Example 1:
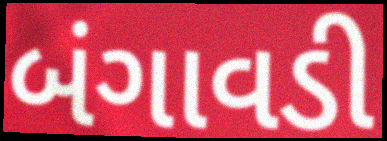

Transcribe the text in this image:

બંગાવડી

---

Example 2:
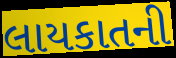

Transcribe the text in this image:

લાયકાતની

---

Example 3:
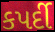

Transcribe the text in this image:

કપર્દી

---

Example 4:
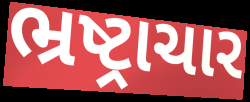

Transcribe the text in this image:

ભ્રષ્ટ્રાચાર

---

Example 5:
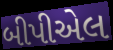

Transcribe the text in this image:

બીપીએલ